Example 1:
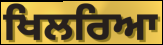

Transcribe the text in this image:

ਖਿਲਰਿਆ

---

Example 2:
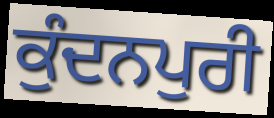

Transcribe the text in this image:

ਕੁੰਦਨਪੁਰੀ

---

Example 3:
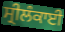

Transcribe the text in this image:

ਸ੍ਰੀਲੰਕਾਈ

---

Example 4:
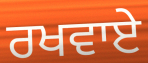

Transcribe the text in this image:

ਰਖਵਾਏ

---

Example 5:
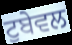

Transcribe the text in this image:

ਟੁਬੇਵਲ